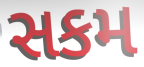
સકમ